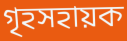
গৃহসহায়ক